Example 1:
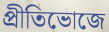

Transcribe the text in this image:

প্রীতিভোজে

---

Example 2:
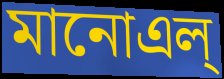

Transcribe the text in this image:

মানোএল্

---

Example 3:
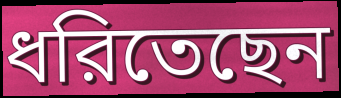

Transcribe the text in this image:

ধরিতেছেন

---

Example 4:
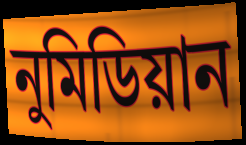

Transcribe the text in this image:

নুমিডিয়ান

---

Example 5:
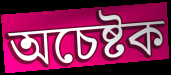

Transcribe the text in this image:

অচেষ্টক